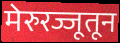
मेरुरज्जूतून